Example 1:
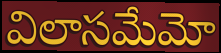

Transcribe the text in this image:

విలాసమేమో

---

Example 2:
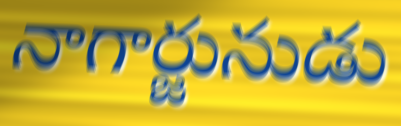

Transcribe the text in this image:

నాగార్జునుడు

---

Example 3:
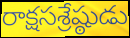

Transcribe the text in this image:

రాక్షసశ్రేష్ఠుడు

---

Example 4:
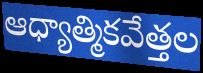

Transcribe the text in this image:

ఆధ్యాత్మికవేత్తల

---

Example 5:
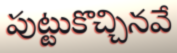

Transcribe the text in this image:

పుట్టుకొచ్చినవే